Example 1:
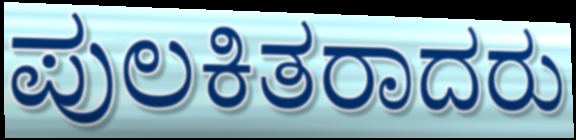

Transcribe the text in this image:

ಪುಲಕಿತರಾದರು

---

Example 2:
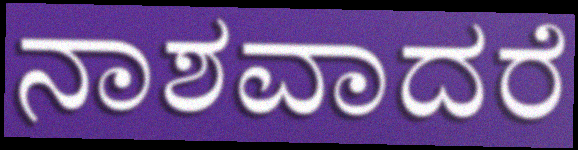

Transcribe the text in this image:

ನಾಶವಾದರೆ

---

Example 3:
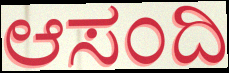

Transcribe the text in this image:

ಆಸಂದಿ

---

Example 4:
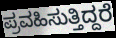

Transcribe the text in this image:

ಪ್ರವಹಿಸುತ್ತಿದ್ದರೆ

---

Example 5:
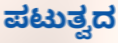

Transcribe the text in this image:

ಪಟುತ್ವದ